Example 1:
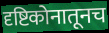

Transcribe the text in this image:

दृष्टिकोनातूनच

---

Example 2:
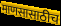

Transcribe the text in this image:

माणसासाठीच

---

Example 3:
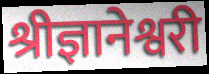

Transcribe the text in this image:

श्रीज्ञानेश्वरी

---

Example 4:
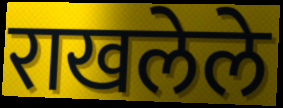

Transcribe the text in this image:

राखलेले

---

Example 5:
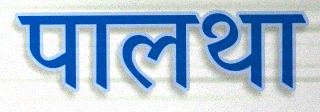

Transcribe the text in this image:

पालथा